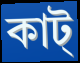
কাট্